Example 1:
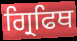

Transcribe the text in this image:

ਗ੍ਰਿਫਿਥ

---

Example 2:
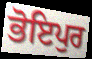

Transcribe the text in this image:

ਭੋਇਪੁਰ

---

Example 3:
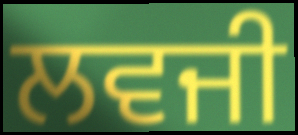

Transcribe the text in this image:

ਲਵਜੀ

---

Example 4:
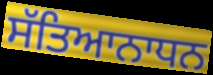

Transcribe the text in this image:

ਸੱਤਿਆਨਾਧਨ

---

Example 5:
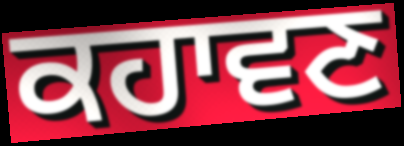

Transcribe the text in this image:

ਕਹਾਵਣ